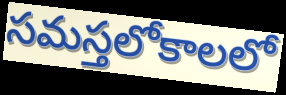
సమస్తలోకాలలో